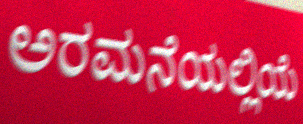
ಅರಮನೆಯಲ್ಲಿಯೆ